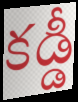
కడ్డీ